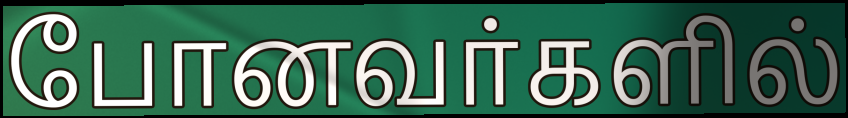
போனவர்களில்